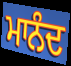
ਮਾਨੰਦ